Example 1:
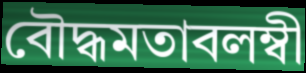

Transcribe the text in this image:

বৌদ্ধমতাবলম্বী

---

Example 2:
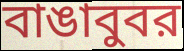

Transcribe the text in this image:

বাঙাবুবর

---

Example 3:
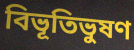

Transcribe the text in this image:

বিভূতিভুষণ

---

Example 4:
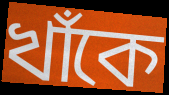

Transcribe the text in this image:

খাঁকে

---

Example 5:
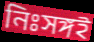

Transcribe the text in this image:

নিঃসঙ্গই